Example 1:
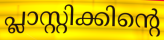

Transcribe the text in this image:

പ്ലാസ്റ്റിക്കിന്റെ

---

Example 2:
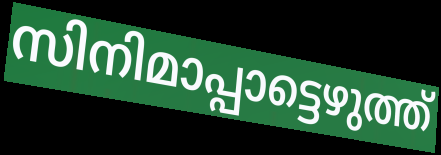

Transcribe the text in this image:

സിനിമാപ്പാട്ടെഴുത്ത്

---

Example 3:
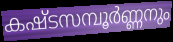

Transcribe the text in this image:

കഷ്ടസമ്പൂർണ്ണനും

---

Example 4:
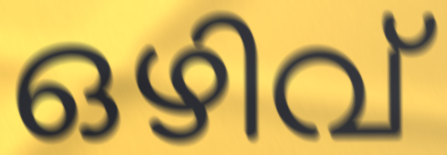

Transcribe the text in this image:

ഒഴിവ്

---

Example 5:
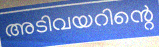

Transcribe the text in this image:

അടിവയറിന്റെ